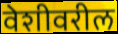
वेशीवरील